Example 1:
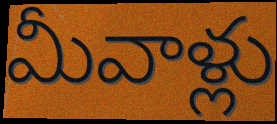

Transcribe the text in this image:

మీవాళ్లు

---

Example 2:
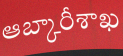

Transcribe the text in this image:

ఆబ్కారీశాఖ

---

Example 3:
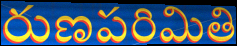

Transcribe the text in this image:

రుణపరిమితి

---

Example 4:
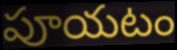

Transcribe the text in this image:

పూయటం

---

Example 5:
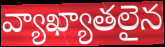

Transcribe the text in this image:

వ్యాఖ్యాతలైన